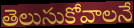
తెలుసుకోవాలనే